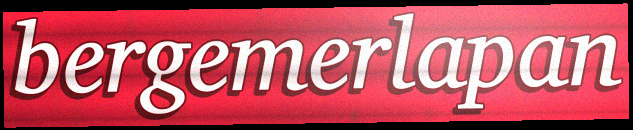
bergemerlapan